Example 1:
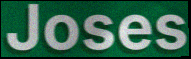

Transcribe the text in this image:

Joses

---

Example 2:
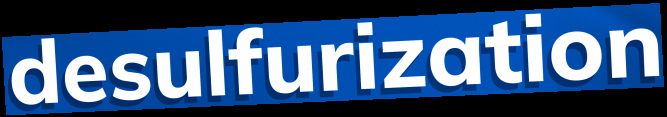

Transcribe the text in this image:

desulfurization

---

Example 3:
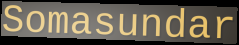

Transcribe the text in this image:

Somasundar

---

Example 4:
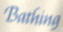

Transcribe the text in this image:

Bathing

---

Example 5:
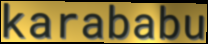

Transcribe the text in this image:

karababu